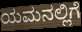
ಯಮನಲ್ಲಿಗೆ